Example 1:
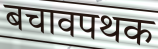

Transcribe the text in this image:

बचावपथक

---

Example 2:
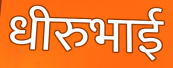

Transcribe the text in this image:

धीरुभाई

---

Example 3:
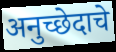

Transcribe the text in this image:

अनुच्छेदाचे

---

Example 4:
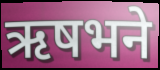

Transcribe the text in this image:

ऋषभने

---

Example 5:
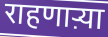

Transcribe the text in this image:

राहणाऱ्‍या